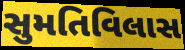
સુમતિવિલાસ